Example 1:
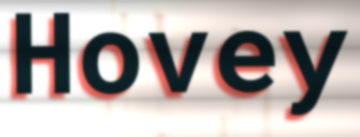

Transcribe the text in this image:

Hovey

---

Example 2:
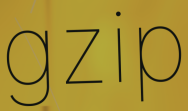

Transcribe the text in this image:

gzip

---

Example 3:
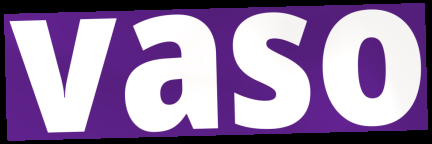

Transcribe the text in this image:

vaso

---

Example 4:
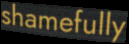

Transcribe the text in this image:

shamefully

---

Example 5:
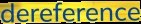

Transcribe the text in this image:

dereference